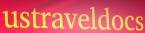
ustraveldocs